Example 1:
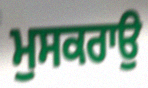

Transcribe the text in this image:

ਮੁਸਕਰਾਉ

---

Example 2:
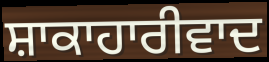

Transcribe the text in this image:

ਸ਼ਾਕਾਹਾਰੀਵਾਦ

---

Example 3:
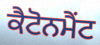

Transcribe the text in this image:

ਕੈਟੋਨਮੈਂਟ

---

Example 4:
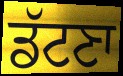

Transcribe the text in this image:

ਡੱਟਣਾ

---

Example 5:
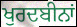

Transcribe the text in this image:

ਖੁਰਦਬੀਨਾਂ